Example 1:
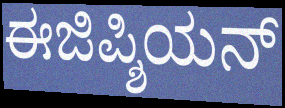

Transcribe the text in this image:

ಈಜಿಪ್ಶಿಯನ್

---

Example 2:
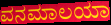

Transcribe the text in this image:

ವನಮಾಲಯಾ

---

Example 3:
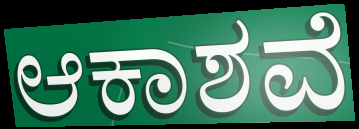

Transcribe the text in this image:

ಆಕಾಶವೆ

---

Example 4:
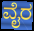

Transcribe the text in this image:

ವೈರ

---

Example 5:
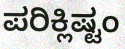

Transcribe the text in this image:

ಪರಿಕ್ಲಿಷ್ಟಂ